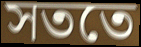
সততে